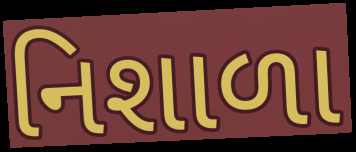
નિશાળા